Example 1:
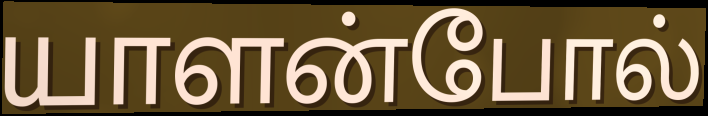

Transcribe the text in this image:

யாளன்போல்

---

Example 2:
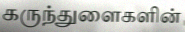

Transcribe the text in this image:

கருந்துளைகளின்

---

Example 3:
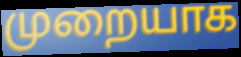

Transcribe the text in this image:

முறையாக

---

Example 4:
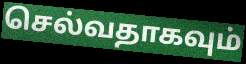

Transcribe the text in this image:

செல்வதாகவும்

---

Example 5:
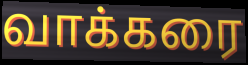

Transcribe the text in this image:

வாக்கரை